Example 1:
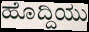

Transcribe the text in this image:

ಹೊದ್ದಿಯು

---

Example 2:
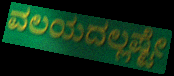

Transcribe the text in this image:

ವಲಯದಲ್ಲಷ್ಟೇ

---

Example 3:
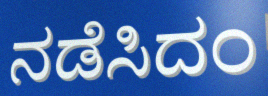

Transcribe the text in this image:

ನಡೆಸಿದಂ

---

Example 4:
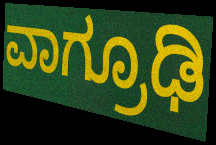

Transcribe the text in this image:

ವಾಗ್ರೂಢಿ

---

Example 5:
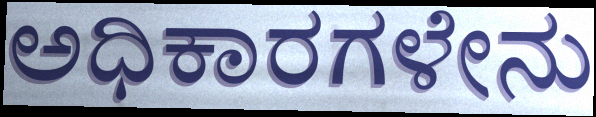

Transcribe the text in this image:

ಅಧಿಕಾರಗಳೇನು